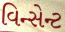
વિન્સેન્ટ